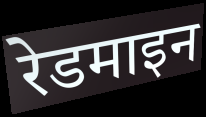
रेडमाइन